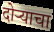
दोर्‍याचा